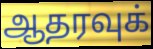
ஆதரவுக்